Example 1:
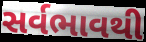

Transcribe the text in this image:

સર્વભાવથી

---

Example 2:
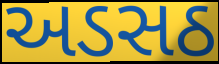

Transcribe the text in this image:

અડસઠ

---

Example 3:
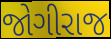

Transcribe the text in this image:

જોગીરાજ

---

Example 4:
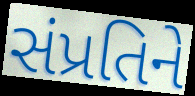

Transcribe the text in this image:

સંપ્રતિને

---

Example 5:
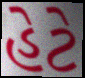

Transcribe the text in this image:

હેટે